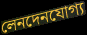
লেনদেনযোগ্য